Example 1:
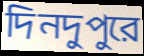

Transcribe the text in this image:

দিনদুপুরে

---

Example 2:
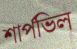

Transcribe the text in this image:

শার্পভিল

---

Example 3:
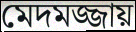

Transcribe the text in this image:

মেদমজ্জায়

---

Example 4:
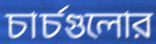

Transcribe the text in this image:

চার্চগুলোর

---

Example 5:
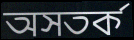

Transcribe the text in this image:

অসতর্ক